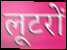
लूटरों